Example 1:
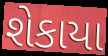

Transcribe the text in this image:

શેકાયા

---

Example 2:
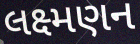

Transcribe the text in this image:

લક્ષ્મણન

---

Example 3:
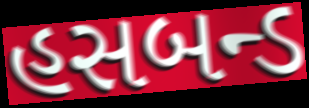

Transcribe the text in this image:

હસબન્ડ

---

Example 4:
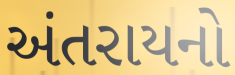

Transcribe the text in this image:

અંતરાયનો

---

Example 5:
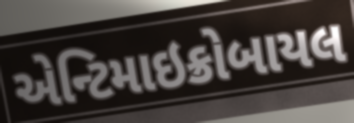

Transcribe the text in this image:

એન્ટિમાઇક્રોબાયલ